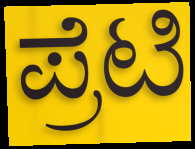
ಪ್ರೆಟಿ